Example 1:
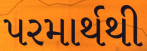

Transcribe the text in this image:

પરમાર્થથી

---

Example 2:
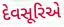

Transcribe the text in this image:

દેવસૂરિએ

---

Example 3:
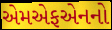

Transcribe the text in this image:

એમએફએનનો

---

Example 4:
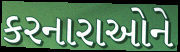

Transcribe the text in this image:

કરનારાઓને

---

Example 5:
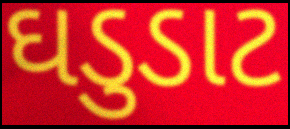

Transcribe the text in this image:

ઘડુડાટ